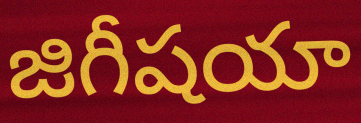
జిగీషయా